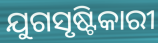
ଯୁଗସୃଷ୍ଟିକାରୀ